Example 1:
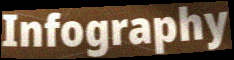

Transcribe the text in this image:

Infography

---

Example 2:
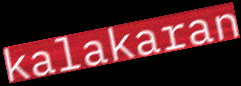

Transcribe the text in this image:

kalakaran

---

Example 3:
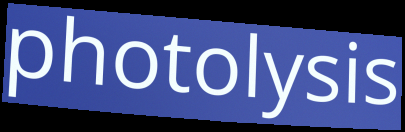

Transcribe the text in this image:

photolysis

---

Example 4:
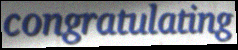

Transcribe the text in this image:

congratulating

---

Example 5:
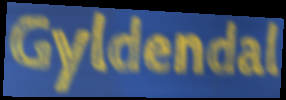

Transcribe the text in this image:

Gyldendal